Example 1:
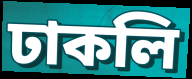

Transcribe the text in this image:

ঢাকলি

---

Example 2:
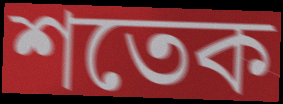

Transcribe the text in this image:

শতেক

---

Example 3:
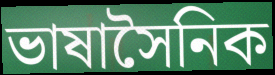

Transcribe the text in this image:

ভাষাসৈনিক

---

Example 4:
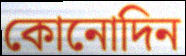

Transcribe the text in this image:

কোনোদিন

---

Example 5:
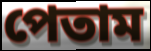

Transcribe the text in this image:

পেতাম